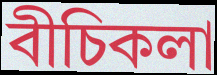
বীচিকলা